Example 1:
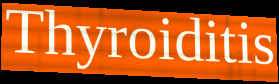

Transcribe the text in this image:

Thyroiditis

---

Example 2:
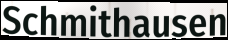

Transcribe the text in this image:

Schmithausen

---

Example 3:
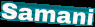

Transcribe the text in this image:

Samani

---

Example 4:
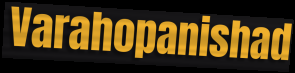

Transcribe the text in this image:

Varahopanishad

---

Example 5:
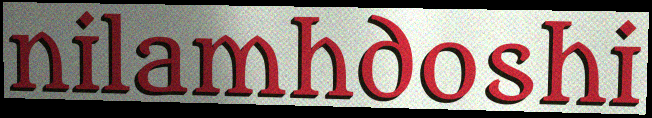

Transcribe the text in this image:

nilamhdoshi